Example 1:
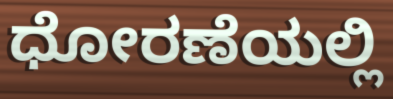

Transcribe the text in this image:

ಧೋರಣೆಯಲ್ಲಿ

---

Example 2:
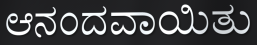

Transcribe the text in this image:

ಆನಂದವಾಯಿತು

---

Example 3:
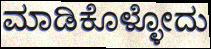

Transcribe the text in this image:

ಮಾಡಿಕೊಳ್ಳೋದು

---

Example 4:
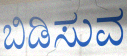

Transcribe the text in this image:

ಬಿಡಿಸುವ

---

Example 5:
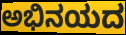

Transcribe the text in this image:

ಅಭಿನಯದ